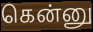
கென்னு